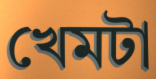
খেমটা